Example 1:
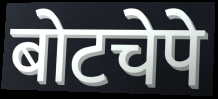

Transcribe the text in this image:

बोटचेपे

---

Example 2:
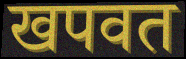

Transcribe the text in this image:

खपवत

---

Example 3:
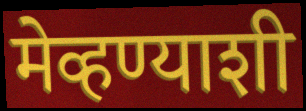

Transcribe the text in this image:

मेव्हण्याशी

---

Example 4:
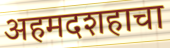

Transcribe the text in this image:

अहमदशहाचा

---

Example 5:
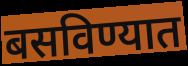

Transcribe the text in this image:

बसविण्यात